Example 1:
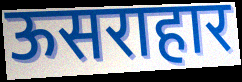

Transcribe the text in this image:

ऊसराहार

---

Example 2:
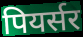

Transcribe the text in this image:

पियर्सर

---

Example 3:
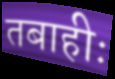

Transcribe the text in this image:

तबाहीः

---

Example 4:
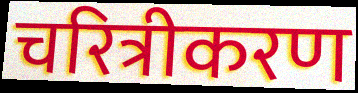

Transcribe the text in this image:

चरित्रीकरण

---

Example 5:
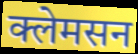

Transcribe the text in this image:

क्लेमसन